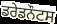
ਡਰੇਡਨੌਟਸ